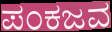
ಪಂಕಜವ